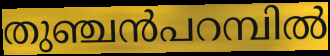
തുഞ്ചൻപറമ്പിൽ